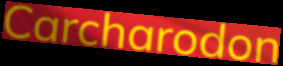
Carcharodon